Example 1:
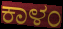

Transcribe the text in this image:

ಕಾಳಂ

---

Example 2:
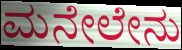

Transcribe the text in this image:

ಮನೇಲೇನು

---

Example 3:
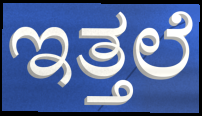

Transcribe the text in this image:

ಇತ್ತಲೆ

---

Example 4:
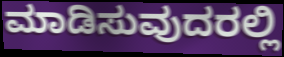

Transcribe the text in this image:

ಮಾಡಿಸುವುದರಲ್ಲಿ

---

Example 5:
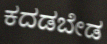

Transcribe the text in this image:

ಕದಡಬೇಡ